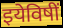
इयेविषीं